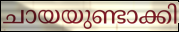
ചായയുണ്ടാക്കി